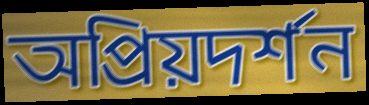
অপ্রিয়দর্শন